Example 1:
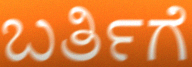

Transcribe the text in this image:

ಬರ್ತಿಗೆ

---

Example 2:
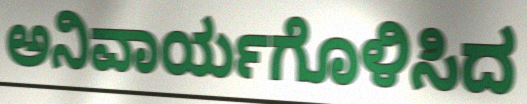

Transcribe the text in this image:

ಅನಿವಾರ್ಯಗೊಳಿಸಿದ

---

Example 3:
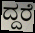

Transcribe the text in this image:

ದ್ದರೆ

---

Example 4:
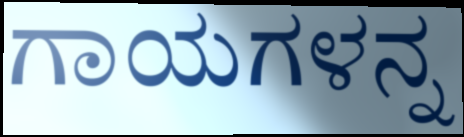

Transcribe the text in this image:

ಗಾಯಗಳನ್ನ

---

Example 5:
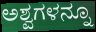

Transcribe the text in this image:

ಅಶ್ವಗಳನ್ನೂ